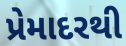
પ્રેમાદરથી